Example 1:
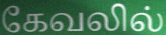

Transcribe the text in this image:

கேவலில்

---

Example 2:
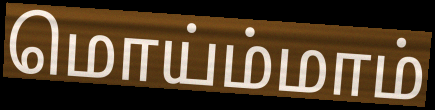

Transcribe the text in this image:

மொய்ம்மாம்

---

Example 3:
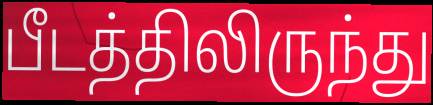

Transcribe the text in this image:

பீடத்திலிருந்து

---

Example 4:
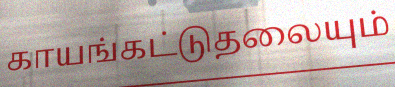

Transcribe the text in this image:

காயங்கட்டுதலையும்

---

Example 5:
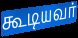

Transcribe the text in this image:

கூடியவர்